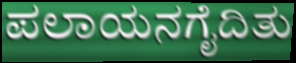
ಪಲಾಯನಗೈದಿತು